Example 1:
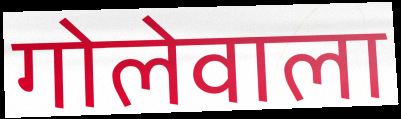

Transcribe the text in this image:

गोलेवाला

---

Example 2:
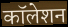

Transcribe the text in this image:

कॉलेशन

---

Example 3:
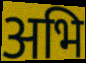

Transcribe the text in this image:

अभि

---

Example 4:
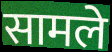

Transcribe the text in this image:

सामले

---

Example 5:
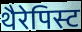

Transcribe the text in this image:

थैरेपिस्ट